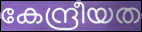
കേന്ദ്രീയത